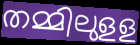
തമ്മിലുളള